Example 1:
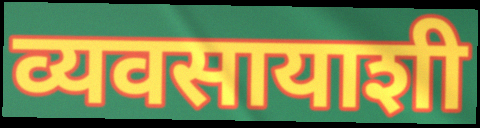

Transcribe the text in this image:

व्यवसायाशी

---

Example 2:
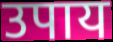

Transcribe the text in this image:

उपाय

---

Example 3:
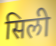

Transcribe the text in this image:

सिली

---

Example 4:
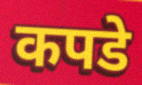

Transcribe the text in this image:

कपडे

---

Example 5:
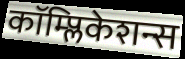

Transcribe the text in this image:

कॉम्प्लिकेशन्स